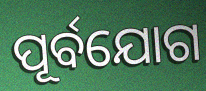
ପୂର୍ବଯୋଗ